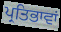
ਪ੍ਰਤਿਭਾਵਾਂ